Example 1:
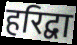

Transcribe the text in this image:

हरिद्वा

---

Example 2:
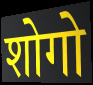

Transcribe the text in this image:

शोगो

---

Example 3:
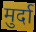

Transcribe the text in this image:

मुर्दा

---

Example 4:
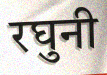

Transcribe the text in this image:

रघुनी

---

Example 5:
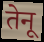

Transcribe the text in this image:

तेनू